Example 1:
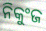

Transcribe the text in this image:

ନିକୁଂଜ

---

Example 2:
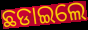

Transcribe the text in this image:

ଛଡାଇଲେ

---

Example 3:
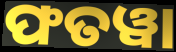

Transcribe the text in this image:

ଫତୱା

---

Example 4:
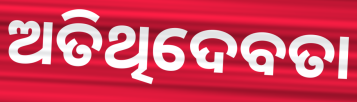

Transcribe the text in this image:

ଅତିଥିଦେବତା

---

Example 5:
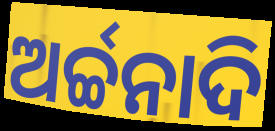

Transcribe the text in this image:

ଅର୍ଚ୍ଚନାଦି